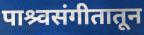
पाश्र्वसंगीतातून